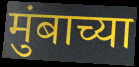
मुंबाच्या